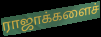
ராஜாக்களைச்